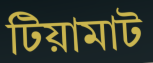
টিয়ামাট